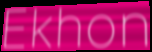
Ekhon